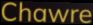
Chawre